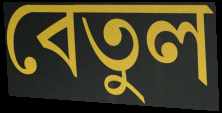
বেতুল